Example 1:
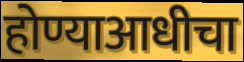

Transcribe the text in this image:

होण्याआधीचा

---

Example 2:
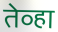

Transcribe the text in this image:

तेव्हा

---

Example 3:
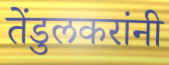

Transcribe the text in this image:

तेंडुलकरांनी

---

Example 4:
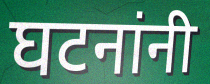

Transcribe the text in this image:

घटनांनी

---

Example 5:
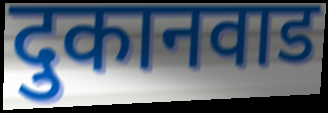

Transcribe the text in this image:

दुकानवाड